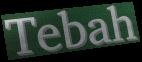
Tebah